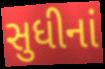
સુધીનાં